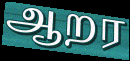
ஆறர